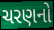
ચરણનો